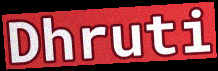
Dhruti